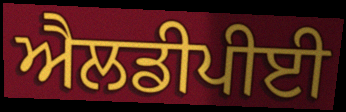
ਐਲਡੀਪੀਈ